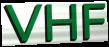
VHF